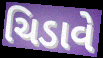
ચિડાવે